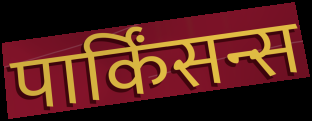
पार्किंसन्स